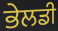
ਭੇਲਡੀ